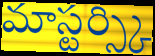
మాస్టర్స్కి